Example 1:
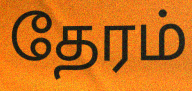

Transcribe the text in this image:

தேரம்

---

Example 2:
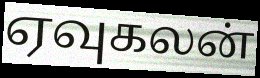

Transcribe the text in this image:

ஏவுகலன்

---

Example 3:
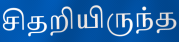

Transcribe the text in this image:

சிதறியிருந்த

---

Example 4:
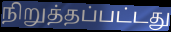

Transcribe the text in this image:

நிறுத்தப்பட்டது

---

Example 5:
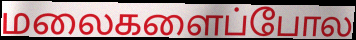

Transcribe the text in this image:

மலைகளைப்போல